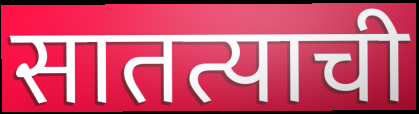
सातत्याची